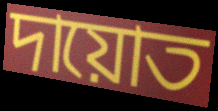
দায়োত